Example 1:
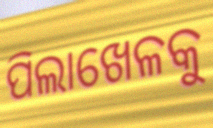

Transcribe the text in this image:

ପିଲାଖେଳକୁ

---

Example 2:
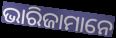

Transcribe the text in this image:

ଭାରିଜାମାନେ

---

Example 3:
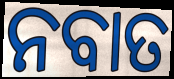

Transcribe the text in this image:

ନବାତ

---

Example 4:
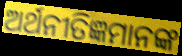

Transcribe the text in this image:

ଅର୍ଥନୀତିଜ୍ଞମାନଙ୍କ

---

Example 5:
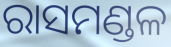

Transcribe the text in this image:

ରାସମଣ୍ଡଳ